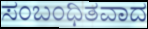
ಸಂಬಂಧಿತವಾದ